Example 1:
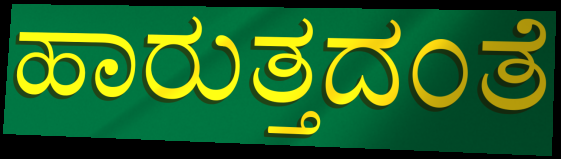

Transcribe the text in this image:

ಹಾರುತ್ತದಂತೆ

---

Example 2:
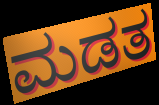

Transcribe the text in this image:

ಮಡತ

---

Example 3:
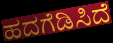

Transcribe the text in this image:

ಹದಗೆಡಿಸಿದೆ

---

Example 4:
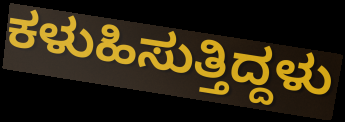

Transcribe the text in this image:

ಕಳುಹಿಸುತ್ತಿದ್ದಳು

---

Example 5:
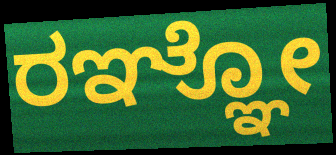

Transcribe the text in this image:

ರಞ್ಞೋ